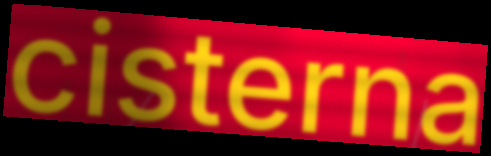
cisterna